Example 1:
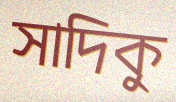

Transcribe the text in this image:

সাদিকু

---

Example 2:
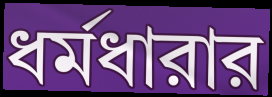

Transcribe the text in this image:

ধর্মধারার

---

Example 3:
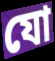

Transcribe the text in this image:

যো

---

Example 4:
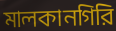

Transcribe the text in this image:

মালকানগিরি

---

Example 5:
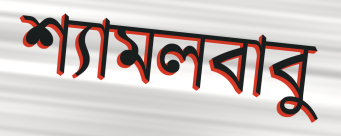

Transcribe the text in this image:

শ্যামলবাবু